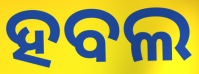
ହବଲ